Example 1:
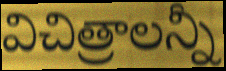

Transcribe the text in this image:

విచిత్రాలన్నీ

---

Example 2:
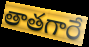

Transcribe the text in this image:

తాతగారే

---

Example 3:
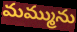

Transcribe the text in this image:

మమ్మును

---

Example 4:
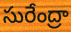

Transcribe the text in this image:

సురేంద్రా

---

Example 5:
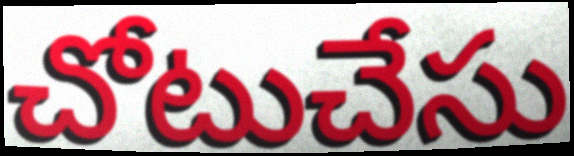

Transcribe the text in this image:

చోటుచేసు